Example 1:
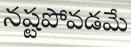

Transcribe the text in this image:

నష్టపోవడమే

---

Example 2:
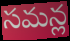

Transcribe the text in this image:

సమన్ల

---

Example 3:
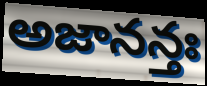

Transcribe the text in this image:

అజానన్తః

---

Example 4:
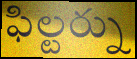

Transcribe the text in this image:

ఫిల్టర్ను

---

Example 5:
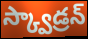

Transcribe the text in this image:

స్క్వాడ్రన్